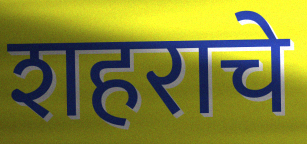
शहराचे